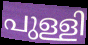
പുള്ളി